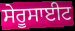
ਸੇਰੂਸਾਈਟ